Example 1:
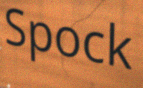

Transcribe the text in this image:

Spock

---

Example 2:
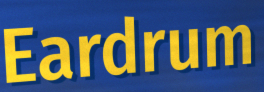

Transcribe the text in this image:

Eardrum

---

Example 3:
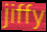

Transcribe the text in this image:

jiffy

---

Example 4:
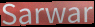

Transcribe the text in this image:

Sarwar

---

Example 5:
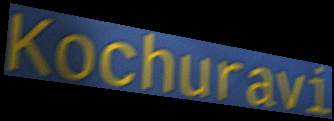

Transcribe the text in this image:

Kochuravi